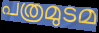
പത്രമുടമ